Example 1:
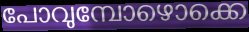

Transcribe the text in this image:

പോവുമ്പോഴൊക്കെ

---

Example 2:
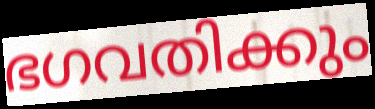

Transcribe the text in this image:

ഭഗവതിക്കും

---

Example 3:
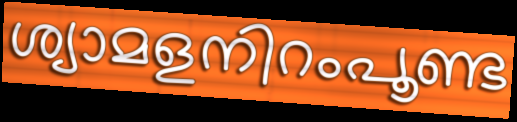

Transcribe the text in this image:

ശ്യാമളനിറംപൂണ്ട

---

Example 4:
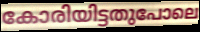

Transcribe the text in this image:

കോരിയിട്ടതുപോലെ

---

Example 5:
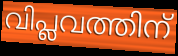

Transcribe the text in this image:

വിപ്ലവത്തിന്